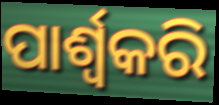
ପାର୍ଶ୍ଵକରି